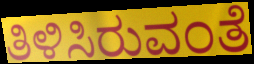
ತಿಳಿಸಿರುವಂತೆ